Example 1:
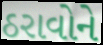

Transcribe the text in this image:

ઠરાવોને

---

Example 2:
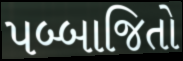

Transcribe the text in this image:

પબ્બાજિતો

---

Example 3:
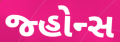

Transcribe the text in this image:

જ્હોન્સ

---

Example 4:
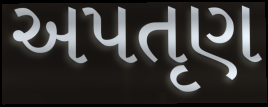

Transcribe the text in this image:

અપતૃણ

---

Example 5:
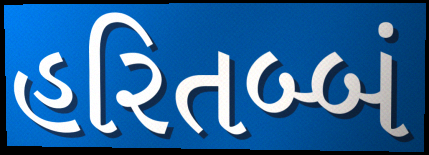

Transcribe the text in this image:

હરિતબ્બં